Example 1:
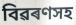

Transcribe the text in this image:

বিৱৰণসহ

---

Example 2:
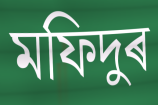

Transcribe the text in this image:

মফিদুৰ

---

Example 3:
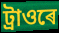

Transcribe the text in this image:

ট্ৰাওৰে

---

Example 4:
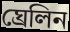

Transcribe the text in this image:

ঘ্ৰেলিন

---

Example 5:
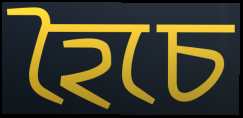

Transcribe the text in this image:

হৈচে